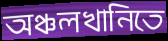
অঞ্চলখানিতে